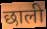
छाली